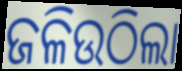
ଜଳିଉଠିଲା